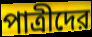
পাত্রীদের